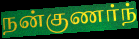
நன்குணர்ந்